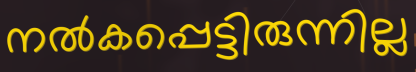
നൽകപ്പെട്ടിരുന്നില്ല